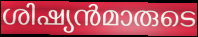
ശിഷ്യൻമാരുടെ